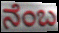
ನೆಂಬ